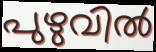
പുഴുവിൽ